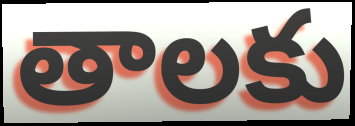
తాలకు